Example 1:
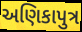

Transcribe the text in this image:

અણિકાપુત્ર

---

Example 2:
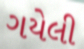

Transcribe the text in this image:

ગયેલી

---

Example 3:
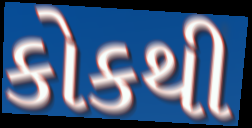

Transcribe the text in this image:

કોકથી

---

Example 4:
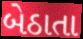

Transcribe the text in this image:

બેઠાતા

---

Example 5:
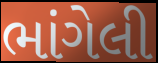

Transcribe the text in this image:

ભાંગેલી